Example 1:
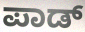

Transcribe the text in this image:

ಪಾಡ್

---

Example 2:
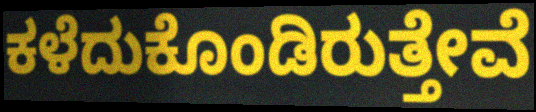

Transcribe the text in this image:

ಕಳೆದುಕೊಂಡಿರುತ್ತೇವೆ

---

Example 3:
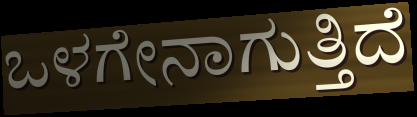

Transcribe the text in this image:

ಒಳಗೇನಾಗುತ್ತಿದೆ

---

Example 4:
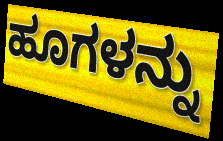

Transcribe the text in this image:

ಹೂಗಳನ್ನು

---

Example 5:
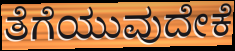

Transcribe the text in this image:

ತೆಗೆಯುವುದೇಕೆ